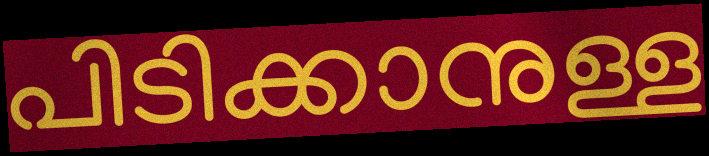
പിടിക്കാനുള്ള